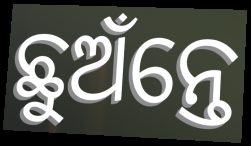
ଛୁଅଁନ୍ତେ